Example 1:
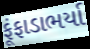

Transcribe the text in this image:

ફૂંફાડાભર્યા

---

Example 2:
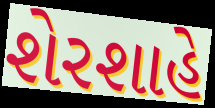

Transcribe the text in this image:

શેરશાહે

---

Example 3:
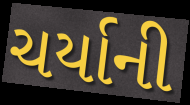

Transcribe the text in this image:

ચર્યાની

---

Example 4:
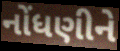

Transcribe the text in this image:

નોંધણીને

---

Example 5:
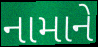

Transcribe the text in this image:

નામાને